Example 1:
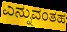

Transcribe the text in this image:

ಎನ್ನುವಂತಹ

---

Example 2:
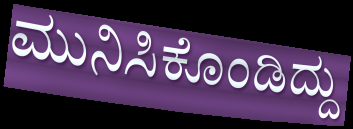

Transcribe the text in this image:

ಮುನಿಸಿಕೊಂಡಿದ್ದು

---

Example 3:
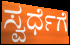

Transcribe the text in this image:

ಸ್ವರ್ಧೆಗೆ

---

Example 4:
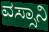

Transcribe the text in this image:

ವಸ್ಸಾನಿ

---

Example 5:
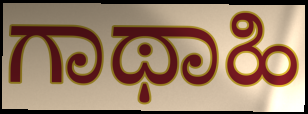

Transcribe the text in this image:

ಗಾಥಾಹಿ